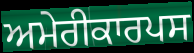
ਅਮੇਰੀਕਾਰਪਸ